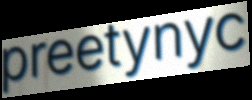
preetynyc